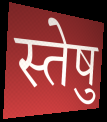
स्तेषु